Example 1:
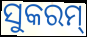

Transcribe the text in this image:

ସୁକରମ୍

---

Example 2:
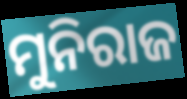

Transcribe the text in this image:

ମୁନିରାଜ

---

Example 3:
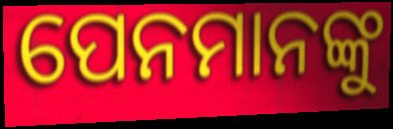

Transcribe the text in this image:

ପେନମାନଙ୍କୁ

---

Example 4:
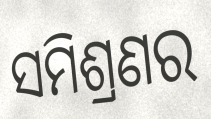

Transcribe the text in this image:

ସମିଶ୍ରଣର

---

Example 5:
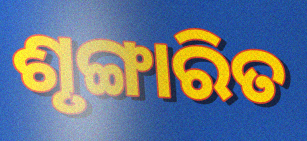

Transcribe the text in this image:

ଶୃଙ୍ଗାରିତ